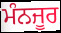
ਮੰਨਜੂਰ